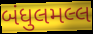
બંધુલમલ્લ